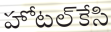
హోటల్‌కేసి